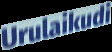
Urulaikudi